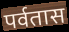
पर्वतास